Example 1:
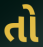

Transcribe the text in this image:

તો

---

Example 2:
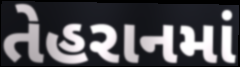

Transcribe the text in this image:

તેહરાનમાં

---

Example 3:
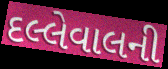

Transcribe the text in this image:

દલ્લેવાલની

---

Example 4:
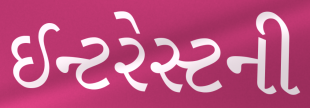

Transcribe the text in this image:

ઈન્ટરેસ્ટની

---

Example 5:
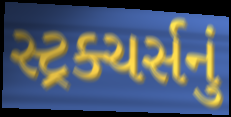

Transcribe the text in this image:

સ્ટ્રક્ચર્સનું